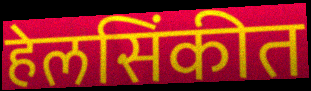
हेलसिंकीत